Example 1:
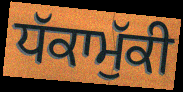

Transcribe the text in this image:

ਧੱਕਾਮੁੱਕੀ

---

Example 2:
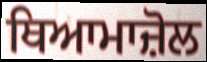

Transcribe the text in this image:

ਥਿਆਮਾਜ਼ੋਲ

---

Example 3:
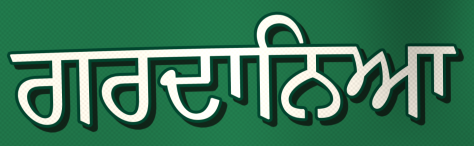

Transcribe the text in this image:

ਗਰਦਾਨਿਆ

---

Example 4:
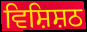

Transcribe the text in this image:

ਵਿਸ਼ਿਸ਼ਠ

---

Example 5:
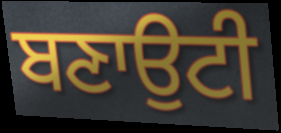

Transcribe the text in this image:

ਬਣਾਉਟੀ